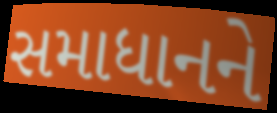
સમાધાનને